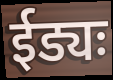
ईड्यः